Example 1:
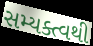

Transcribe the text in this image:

સમ્યક્ત્વથી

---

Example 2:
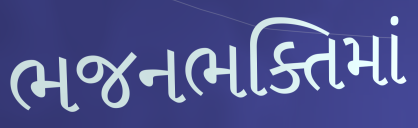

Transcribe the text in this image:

ભજનભક્તિમાં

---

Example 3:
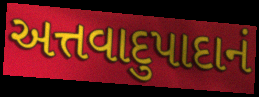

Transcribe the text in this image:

અત્તવાદુપાદાનં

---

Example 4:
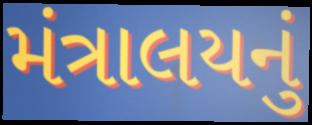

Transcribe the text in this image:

મંત્રાલયનું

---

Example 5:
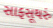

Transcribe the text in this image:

સાફસૂથરું